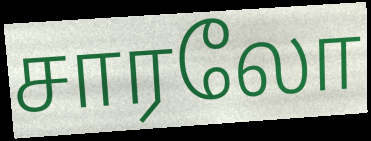
சாரலோ